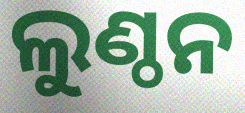
ଲୁଣ୍ଠନ